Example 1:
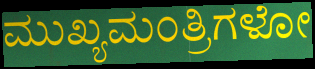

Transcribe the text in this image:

ಮುಖ್ಯಮಂತ್ರಿಗಳೋ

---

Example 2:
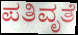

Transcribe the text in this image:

ಪತಿವೃತೆ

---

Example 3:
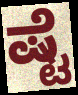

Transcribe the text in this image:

ಷ್ಟೆ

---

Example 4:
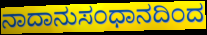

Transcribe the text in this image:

ನಾದಾನುಸಂಧಾನದಿಂದ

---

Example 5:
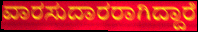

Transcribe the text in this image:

ವಾರಸುದಾರರಾಗಿದ್ದಾರೆ